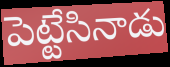
పెట్టేసినాడు